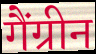
गैंग्रीन